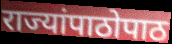
राज्यांपाठोपाठ